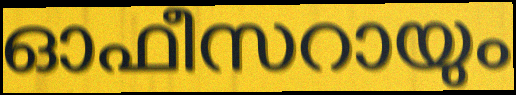
ഓഫീസറായും